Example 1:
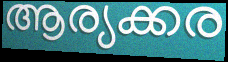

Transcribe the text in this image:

ആര്യക്കര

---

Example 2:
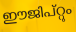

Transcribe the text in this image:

ഈജിപ്റ്റും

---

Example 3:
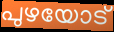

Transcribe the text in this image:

പുഴയോട്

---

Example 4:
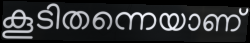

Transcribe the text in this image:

കൂടിതന്നെയാണ്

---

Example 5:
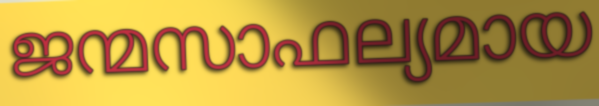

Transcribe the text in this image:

ജന്മസാഫല്യമായ